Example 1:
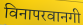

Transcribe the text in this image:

विनापरवानगी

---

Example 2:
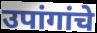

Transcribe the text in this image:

उपांगांचे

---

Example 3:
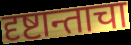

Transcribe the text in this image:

दृष्टान्ताचा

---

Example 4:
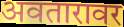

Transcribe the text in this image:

अवतारावर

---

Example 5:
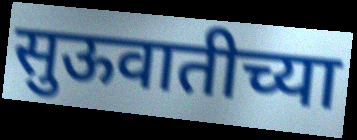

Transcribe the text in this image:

सुऊवातीच्या